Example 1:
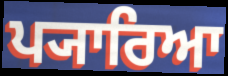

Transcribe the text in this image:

ਪ੍ਯਾਰਿਆ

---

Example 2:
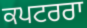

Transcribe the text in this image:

ਕਪਟਰਰਾ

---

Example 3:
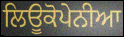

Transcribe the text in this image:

ਲਿਊਕੋਪੇਨੀਆ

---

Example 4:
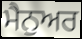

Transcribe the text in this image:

ਮੈਨੁਅਰ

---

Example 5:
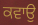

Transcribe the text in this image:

ਕਵਾਉ